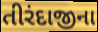
તીરંદાજીના